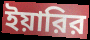
ইয়ারির